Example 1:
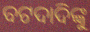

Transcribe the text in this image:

ବଟଦାଦିଙ୍କୁ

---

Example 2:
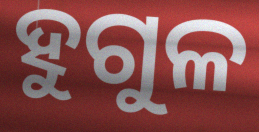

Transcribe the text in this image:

ହୁଗୁଳ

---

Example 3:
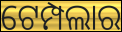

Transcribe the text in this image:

ଟେମ୍ପଲାର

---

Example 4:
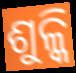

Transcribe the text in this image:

ଶୁଳ୍କି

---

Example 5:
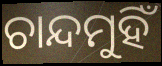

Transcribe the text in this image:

ଚାନ୍ଦମୁହିଁ